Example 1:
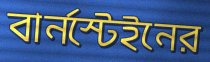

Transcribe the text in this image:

বার্নস্টেইনের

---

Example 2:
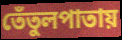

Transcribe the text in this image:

তেঁতুলপাতায়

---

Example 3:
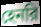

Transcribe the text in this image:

হেনরি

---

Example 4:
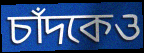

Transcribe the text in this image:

চাঁদকেও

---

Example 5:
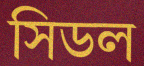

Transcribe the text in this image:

সিডল